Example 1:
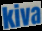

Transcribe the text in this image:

kiva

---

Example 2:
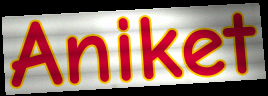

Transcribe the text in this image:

Aniket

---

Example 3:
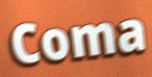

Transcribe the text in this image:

Coma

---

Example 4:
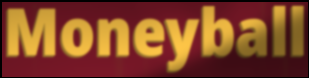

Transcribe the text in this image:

Moneyball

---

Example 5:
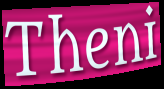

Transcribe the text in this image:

Theni